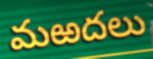
మఱదలు